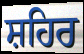
ਸ਼ਹਿਰ